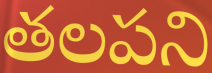
తలపని